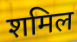
शमिल